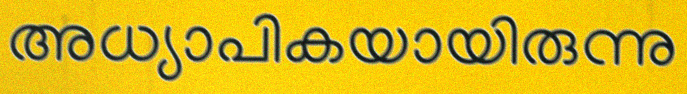
അധ്യാപികയായിരുന്നു